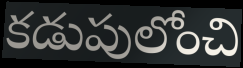
కడుపులోంచి